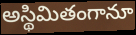
అస్థిమితంగానూ